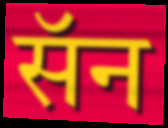
सॅन